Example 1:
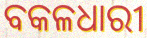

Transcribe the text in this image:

ବକଳଧାରୀ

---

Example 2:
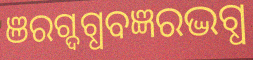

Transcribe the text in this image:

ଞରଗ୍ଦଗ୍ଧବଜ୍ଞରଦ୍ଭଗ୍ଧ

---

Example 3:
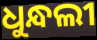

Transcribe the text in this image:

ଧୁନ୍ଧଲୀ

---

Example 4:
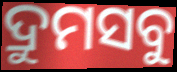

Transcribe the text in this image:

ଦ୍ରୁମସବୁ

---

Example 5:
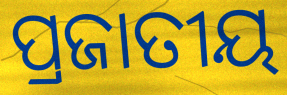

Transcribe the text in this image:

ପ୍ରଜାତୀୟ